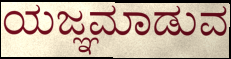
ಯಜ್ಞಮಾಡುವ